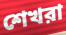
শেখরা